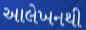
આલેખનથી